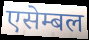
एसेम्बल